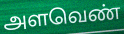
அளவெண்